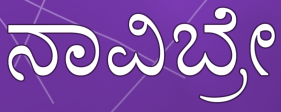
ನಾವಿಬ್ರೇ